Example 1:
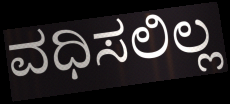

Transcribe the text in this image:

ವಧಿಸಲಿಲ್ಲ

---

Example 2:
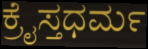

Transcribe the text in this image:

ಕ್ರೈಸ್ತಧರ್ಮ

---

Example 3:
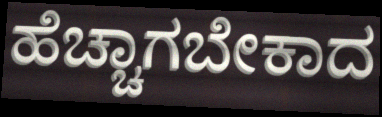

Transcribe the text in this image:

ಹೆಚ್ಚಾಗಬೇಕಾದ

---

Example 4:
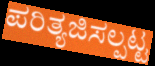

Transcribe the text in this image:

ಪರಿತ್ಯಜಿಸಲ್ಪಟ್ಟ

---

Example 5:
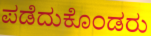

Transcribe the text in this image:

ಪಡೆದುಕೊಂಡರು